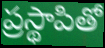
ప్రస్థాపితో